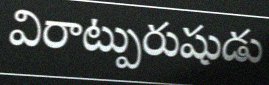
విరాట్పురుషుడు